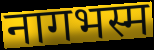
नागभस्म